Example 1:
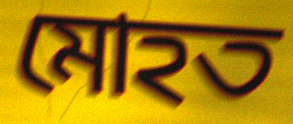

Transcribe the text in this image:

মোহত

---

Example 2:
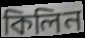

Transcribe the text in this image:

কিলিন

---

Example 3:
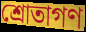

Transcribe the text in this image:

শ্রোতাগণ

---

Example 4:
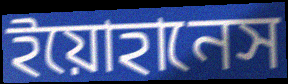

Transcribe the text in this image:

ইয়োহানেস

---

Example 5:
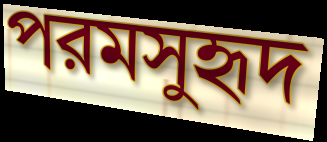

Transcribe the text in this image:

পরমসুহৃদ